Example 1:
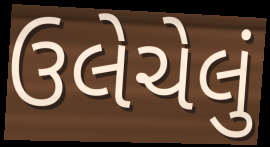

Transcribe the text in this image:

ઉલેચેલું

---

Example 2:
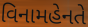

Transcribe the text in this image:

વિનામહેનતે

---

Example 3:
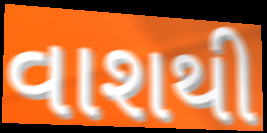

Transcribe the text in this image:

વાશથી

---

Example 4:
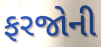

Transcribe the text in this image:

ફરજોની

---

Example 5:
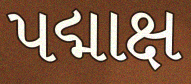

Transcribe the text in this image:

પદ્માક્ષ